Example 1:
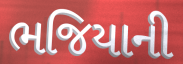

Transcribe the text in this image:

ભજિયાની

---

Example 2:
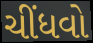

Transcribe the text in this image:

ચીંધવો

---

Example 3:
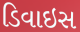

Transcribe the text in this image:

ડિવાઇસ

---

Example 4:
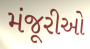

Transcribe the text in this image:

મંજૂરીઓ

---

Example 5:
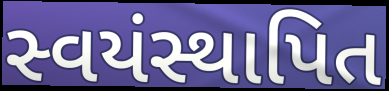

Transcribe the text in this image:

સ્વયંસ્થાપિત